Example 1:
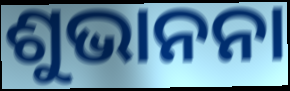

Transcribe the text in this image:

ଶୁଭାନନା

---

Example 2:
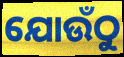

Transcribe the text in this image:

ଯୋଉଁଠୁ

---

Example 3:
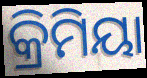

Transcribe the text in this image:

କ୍ରିମିୟା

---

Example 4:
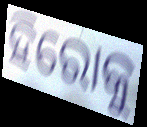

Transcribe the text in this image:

ହିରୋକୁ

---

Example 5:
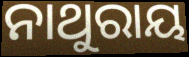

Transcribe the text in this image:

ନାଥୁରାୟ